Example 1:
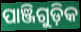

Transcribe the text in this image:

ପାଞ୍ଜିଗୁଡ଼ିକ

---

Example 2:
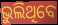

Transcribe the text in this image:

ଭୁଲିଥିବେ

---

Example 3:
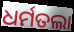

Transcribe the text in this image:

ଧର୍ମତଲା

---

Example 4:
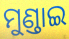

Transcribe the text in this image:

ମୁଣ୍ଡାଇ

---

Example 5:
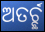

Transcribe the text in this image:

ଅତର୍ଚ୍ଛ